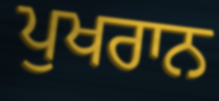
ਪੁਖਰਾਨ